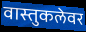
वास्तुकलेवर